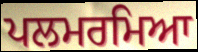
ਪਲਮਰਮਿਆ